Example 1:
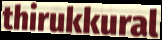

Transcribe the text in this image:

thirukkural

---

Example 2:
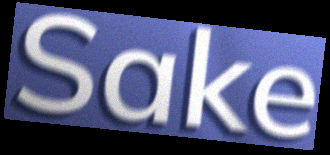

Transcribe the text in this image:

Sake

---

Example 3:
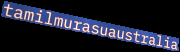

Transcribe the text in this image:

tamilmurasuaustralia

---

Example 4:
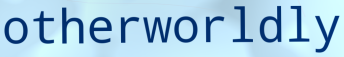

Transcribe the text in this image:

otherworldly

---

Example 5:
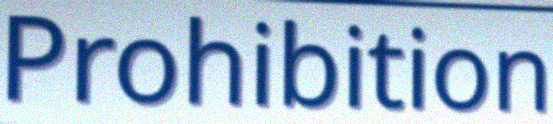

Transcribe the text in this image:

Prohibition